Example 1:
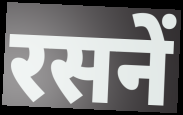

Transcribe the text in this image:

रसनें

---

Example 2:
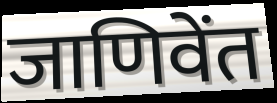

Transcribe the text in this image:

जाणिवेंत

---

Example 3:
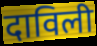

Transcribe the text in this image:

दाविली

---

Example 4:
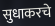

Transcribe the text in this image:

सुधाकरचे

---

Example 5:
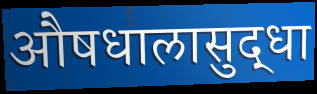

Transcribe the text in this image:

औषधालासुद्धा